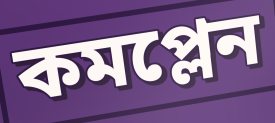
কমপ্লেন